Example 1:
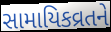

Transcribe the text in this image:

સામાયિકવ્રતને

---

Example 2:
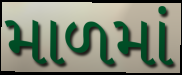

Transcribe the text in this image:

માળમાં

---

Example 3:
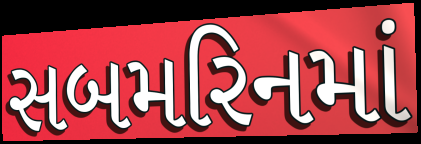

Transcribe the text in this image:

સબમરિનમાં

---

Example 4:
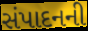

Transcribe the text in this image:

સંપાદનની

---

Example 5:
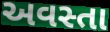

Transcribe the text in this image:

અવસ્તા